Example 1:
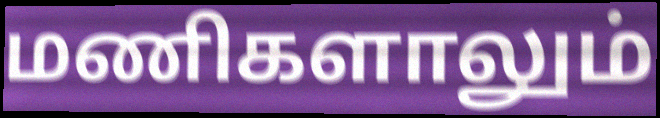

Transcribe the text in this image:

மணிகளாலும்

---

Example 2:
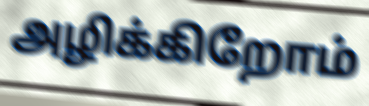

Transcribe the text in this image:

அழிக்கிறோம்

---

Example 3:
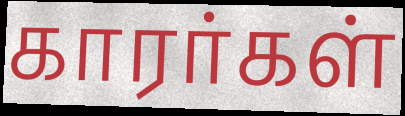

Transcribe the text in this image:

காரர்கள்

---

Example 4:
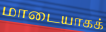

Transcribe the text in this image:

மாடையாகக்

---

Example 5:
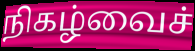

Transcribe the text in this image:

நிகழ்வைச்